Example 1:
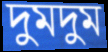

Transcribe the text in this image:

দুমদুম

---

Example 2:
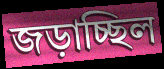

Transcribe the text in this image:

জড়াচ্ছিল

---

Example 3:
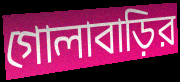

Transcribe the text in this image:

গোলাবাড়ির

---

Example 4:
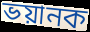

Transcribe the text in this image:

ভয়ানক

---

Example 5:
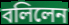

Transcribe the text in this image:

বলিলেন